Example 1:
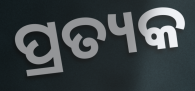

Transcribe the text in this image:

ପ୍ରତ୍ୟକ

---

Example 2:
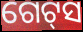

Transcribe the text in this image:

ଗେଟ୍‌ସ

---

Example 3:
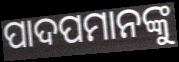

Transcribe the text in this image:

ପାଦପମାନଙ୍କୁ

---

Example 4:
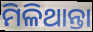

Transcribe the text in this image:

ମିଳିଥାନ୍ତା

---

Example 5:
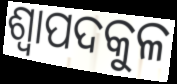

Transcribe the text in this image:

ଶ୍ୱାପଦକୁଳ